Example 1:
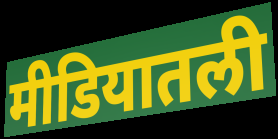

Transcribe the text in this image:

मीडियातली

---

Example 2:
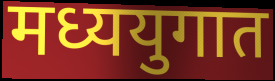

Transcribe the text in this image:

मध्ययुगात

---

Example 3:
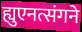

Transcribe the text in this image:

ह्युएनत्संगने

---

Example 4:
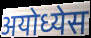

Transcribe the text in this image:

अयोध्येस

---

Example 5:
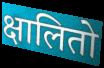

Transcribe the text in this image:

क्षालितो